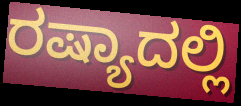
ರಷ್ಯಾದಲ್ಲಿ